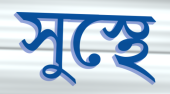
সুস্থে